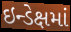
ઇન્ડેક્ષમાં